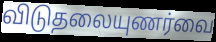
விடுதலையுணர்வை